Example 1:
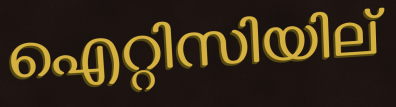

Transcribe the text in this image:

ഐറ്റിസിയില്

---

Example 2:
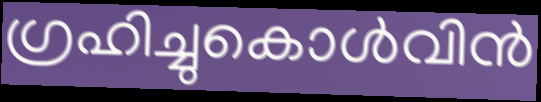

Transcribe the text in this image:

ഗ്രഹിച്ചുകൊൾവിൻ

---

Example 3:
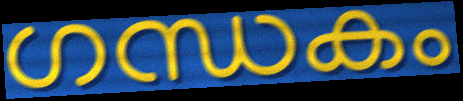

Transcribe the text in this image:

ഗന്ധകം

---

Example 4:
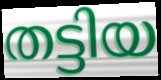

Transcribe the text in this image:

തട്ടിയ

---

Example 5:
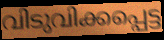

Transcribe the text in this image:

വിടുവിക്കപ്പെട്ട